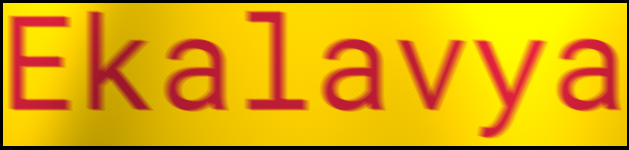
Ekalavya